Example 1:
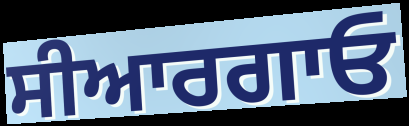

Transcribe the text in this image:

ਸੀਆਰਗਾਓ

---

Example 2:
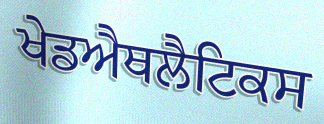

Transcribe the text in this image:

ਖੇਡਐਥਲੈਟਿਕਸ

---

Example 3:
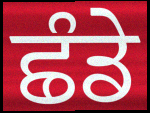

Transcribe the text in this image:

ਛੰਡੇ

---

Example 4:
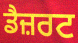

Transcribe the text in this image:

ਡੈਜ਼ਰਟ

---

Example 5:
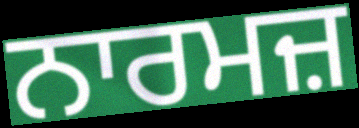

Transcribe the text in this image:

ਨਾਰਮਜ਼